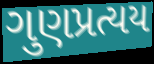
ગુણપ્રત્યય